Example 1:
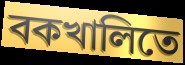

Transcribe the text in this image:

বকখালিতে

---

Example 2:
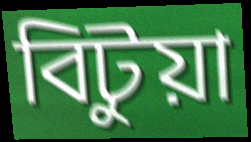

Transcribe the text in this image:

বিটুয়া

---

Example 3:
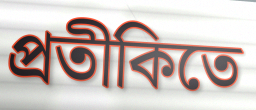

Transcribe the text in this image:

প্রতীকিতে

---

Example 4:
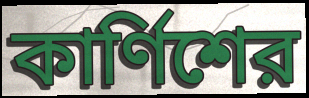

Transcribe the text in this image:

কার্ণিশের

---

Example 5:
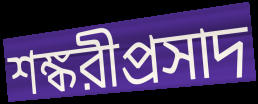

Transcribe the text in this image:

শঙ্করীপ্রসাদ